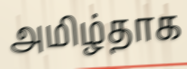
அமிழ்தாக